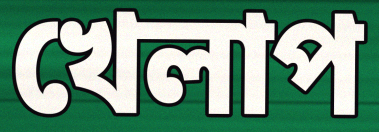
খেলাপ